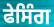
ਫੇਸਿੰਗ